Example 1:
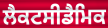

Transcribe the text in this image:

ਲੈਕਟਸੀਡੈਮਿਕ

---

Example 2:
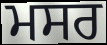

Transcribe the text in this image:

ਮਸਰ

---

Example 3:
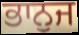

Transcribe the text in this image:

ਭਾਨੁਜ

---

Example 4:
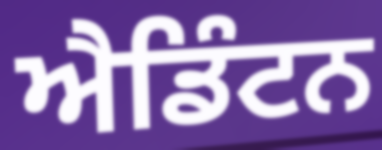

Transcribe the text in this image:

ਐਡਿੰਟਨ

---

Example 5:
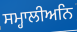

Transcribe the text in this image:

ਸਮ੍ਹਾਲੀਅਨਿ